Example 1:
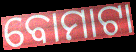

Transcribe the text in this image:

ବୋମାଟା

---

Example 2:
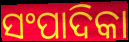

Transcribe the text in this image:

ସଂପାଦିକା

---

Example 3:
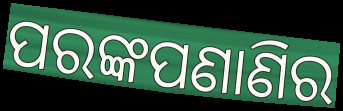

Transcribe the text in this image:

ପରଙ୍କପଣାଣିର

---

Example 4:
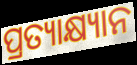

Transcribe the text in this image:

ପ୍ରତ୍ୟାକ୍ଷ୍ୟାନ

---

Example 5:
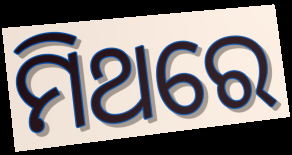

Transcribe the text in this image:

ମିଥରେ